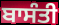
ਬਾਸੰਤੀ